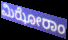
ಮಿಝೋರಾಂ